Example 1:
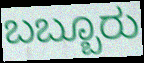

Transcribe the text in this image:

ಬಬ್ಬೂರು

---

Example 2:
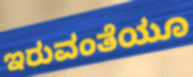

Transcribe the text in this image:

ಇರುವಂತೆಯೂ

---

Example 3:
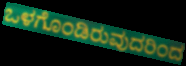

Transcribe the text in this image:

ಒಳಗೊಂಡಿರುವುದರಿಂದ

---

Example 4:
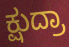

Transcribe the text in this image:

ಕ್ಷುದ್ರಾ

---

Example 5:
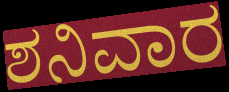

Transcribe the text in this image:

ಶನಿವಾರ